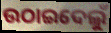
ଉଠାଇଦେଲୁଁ